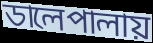
ডালেপালায়